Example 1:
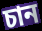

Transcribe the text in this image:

চান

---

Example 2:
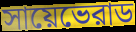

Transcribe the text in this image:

সায়েভেরাড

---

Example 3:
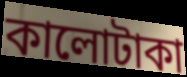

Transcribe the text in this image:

কালোটাকা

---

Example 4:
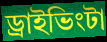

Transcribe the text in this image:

ড্রাইভিংটা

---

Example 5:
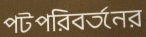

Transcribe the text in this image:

পটপরিবর্তনের